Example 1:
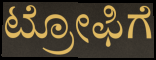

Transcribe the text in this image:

ಟ್ರೋಫಿಗೆ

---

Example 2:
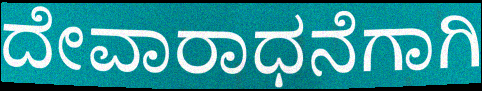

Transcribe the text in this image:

ದೇವಾರಾಧನೆಗಾಗಿ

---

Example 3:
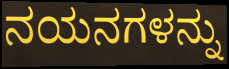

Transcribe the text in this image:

ನಯನಗಳನ್ನು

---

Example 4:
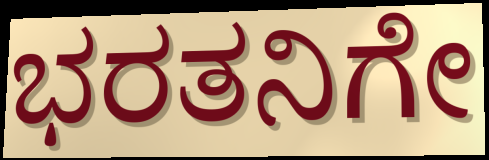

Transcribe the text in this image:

ಭರತನಿಗೇ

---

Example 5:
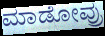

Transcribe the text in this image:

ಮಾಡೋವ್ರು